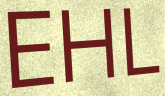
EHL